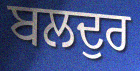
ਬਲਦੁਰ